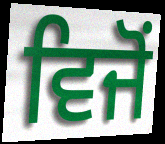
ਵਿਜੋਂ